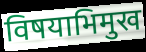
विषयाभिमुख